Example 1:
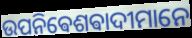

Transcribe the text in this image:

ଉପନିଵେଶଵାଦୀମାନେ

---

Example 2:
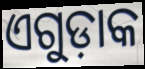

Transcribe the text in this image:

ଏଗୁଡ଼ାକ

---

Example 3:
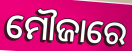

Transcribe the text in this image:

ମୌଜାରେ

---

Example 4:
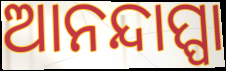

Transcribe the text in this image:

ଆନନ୍ଦାପ୍ପା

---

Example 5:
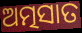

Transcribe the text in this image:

ଅତ୍ମସାତ